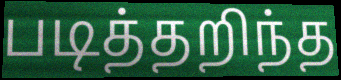
படித்தறிந்த